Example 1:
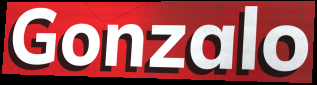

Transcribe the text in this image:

Gonzalo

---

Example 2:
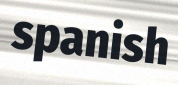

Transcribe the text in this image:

spanish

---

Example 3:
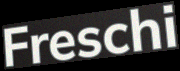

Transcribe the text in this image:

Freschi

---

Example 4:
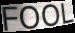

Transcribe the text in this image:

FOOL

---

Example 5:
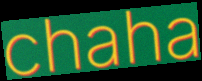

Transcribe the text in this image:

chaha